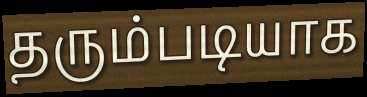
தரும்படியாக